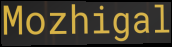
Mozhigal